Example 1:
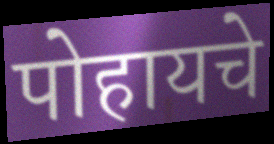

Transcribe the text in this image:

पोहायचे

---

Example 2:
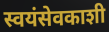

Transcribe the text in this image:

स्वयंसेवकाशी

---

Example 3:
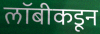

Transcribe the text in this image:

लॉबीकडून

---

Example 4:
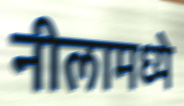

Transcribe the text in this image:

नीलामध्ये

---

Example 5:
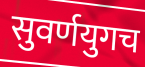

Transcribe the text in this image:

सुवर्णयुगच